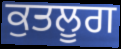
ਕੁਤਲੂਗ